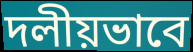
দলীয়ভাবে